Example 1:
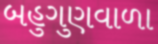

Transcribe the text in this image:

બહુગુણવાળા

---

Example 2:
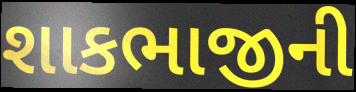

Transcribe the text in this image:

શાકભાજીની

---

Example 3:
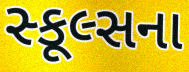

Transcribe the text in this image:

સ્કૂલ્સના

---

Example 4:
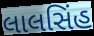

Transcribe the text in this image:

લાલસિંહ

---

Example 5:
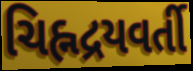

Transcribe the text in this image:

ચિહ્નદ્રયવર્તી